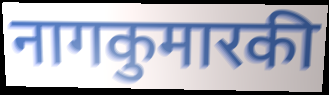
नागकुमारकी